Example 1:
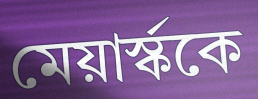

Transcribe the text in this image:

মেয়ার্স্ককে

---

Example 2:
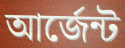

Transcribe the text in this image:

আর্জেন্ট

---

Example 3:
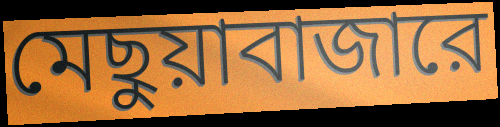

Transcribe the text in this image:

মেছুয়াবাজারে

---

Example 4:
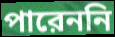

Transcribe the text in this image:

পারেননি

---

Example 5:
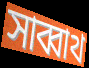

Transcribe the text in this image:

সাব্বাথ